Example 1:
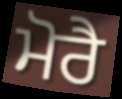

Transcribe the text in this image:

ਮੋਰੈ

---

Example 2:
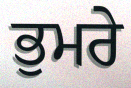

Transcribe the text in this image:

ਭੁਮਰੇ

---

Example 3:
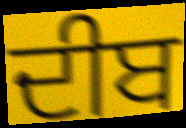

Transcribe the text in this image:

ਦੀਬ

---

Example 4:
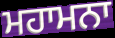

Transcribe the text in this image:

ਮਹਾਮਨਾ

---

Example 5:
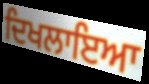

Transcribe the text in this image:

ਦਿਖਲਾਇਆ